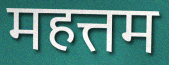
महत्तम